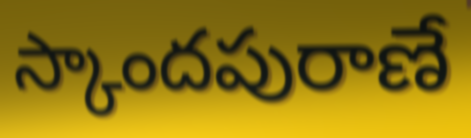
స్కాందపురాణే